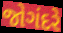
જોગંદરે